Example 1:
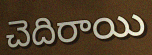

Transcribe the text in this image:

చెదిరాయి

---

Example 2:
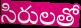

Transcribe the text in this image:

సిరులతో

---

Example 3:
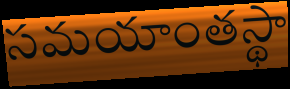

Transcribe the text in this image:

సమయాంతస్థా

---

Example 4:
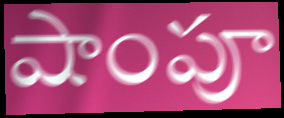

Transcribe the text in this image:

షాంపూ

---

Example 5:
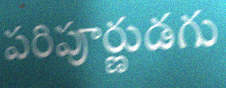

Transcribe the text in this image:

పరిపూర్ణుడగు